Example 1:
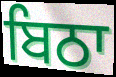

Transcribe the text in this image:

ਬਿਠਾ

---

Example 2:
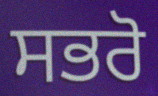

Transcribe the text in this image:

ਸਭਰੋ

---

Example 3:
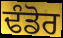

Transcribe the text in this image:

ਢੰਡੋਰ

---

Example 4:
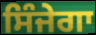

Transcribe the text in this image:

ਸਿੰਜੇਗਾ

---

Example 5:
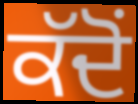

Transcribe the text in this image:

ਕੱਦੋਂ